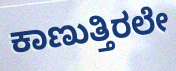
ಕಾಣುತ್ತಿರಲೇ